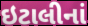
ઇટાલીનાં